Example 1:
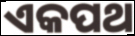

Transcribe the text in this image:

ଏକପଥ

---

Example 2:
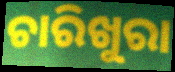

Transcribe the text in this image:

ଚାରିଖୁରା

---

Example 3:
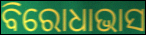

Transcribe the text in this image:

ବିରୋଧାଭାସ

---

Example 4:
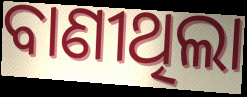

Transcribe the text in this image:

ବାଣୀଥିଲା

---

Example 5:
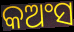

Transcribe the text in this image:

କଅଂସ